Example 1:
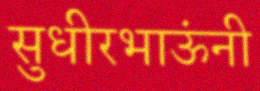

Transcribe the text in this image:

सुधीरभाऊंनी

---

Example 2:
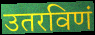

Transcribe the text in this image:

उतरविणं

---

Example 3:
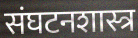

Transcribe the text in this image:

संघटनशास्त्र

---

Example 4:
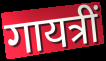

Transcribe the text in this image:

गायत्रीं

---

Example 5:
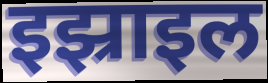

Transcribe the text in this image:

इझ्राइल